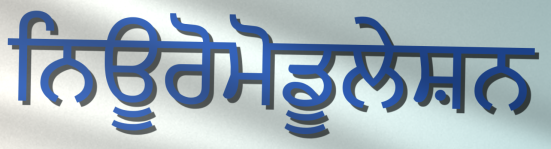
ਨਿਊਰੋਮੋਡੂਲੇਸ਼ਨ